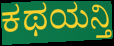
ಕಥಯನ್ತಿ